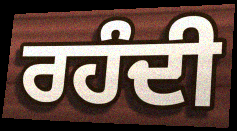
ਰਹੰਦੀ